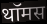
थॉमस